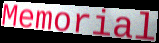
Memorial